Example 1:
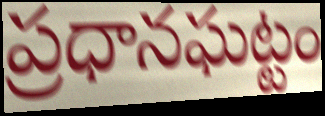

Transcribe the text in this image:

ప్రధానఘట్టం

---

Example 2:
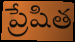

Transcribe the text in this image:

ప్రేషిత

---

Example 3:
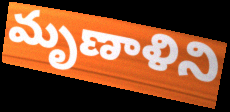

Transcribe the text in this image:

మృణాళిని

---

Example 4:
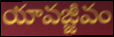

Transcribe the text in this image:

యావజ్జీవం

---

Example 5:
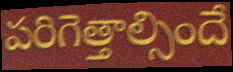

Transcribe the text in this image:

పరిగెత్తాల్సిందే